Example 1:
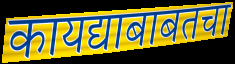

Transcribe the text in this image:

कायद्याबाबतचा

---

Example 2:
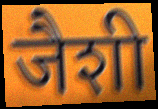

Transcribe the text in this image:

जैशी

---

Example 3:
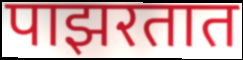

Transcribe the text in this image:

पाझरतात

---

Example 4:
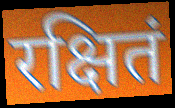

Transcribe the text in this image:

रक्षितं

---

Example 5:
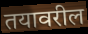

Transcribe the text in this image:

तयावरील